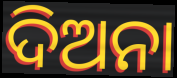
ଦିଅନା